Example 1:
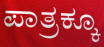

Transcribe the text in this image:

ಪಾತ್ರಕ್ಕೂ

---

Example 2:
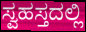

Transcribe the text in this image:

ಸ್ವಹಸ್ತದಲ್ಲಿ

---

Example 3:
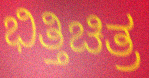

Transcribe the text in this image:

ಭಿತ್ತಿಚಿತ್ರ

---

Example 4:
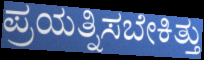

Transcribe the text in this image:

ಪ್ರಯತ್ನಿಸಬೇಕಿತ್ತು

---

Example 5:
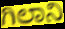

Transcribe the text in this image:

ಗಿಲಾನಿ